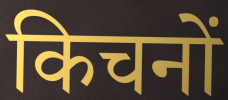
किचनों